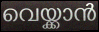
വെയ്ക്കാൻ